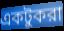
একটুকরা